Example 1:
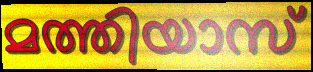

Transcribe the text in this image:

മത്തിയാസ്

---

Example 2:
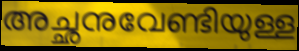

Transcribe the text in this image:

അച്ഛനുവേണ്ടിയുള്ള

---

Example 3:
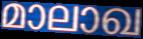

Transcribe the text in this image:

മാലാഖ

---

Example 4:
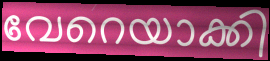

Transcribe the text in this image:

വേറെയാക്കി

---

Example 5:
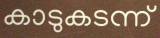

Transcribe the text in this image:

കാടുകടന്ന്